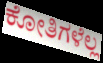
ಕೋತಿಗಳೆಲ್ಲ